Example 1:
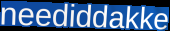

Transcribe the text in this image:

neediddakke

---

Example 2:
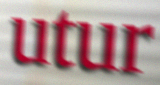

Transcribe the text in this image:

utur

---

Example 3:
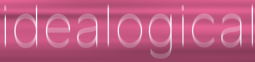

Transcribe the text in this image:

idealogical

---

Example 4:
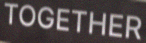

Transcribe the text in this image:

TOGETHER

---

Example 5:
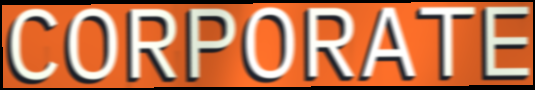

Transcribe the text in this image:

CORPORATE